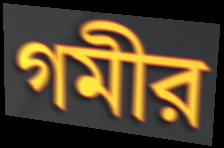
গমীর